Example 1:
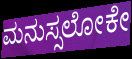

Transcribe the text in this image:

ಮನುಸ್ಸಲೋಕೇ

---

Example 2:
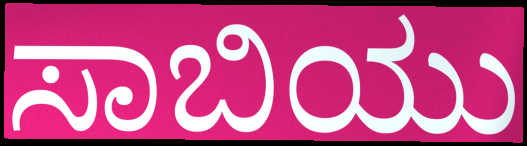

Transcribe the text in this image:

ಸಾಬಿಯು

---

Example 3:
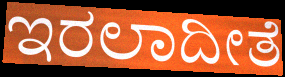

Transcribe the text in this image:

ಇರಲಾದೀತೆ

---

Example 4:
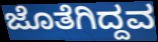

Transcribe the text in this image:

ಜೊತೆಗಿದ್ದವ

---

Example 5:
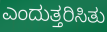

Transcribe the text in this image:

ಎಂದುತ್ತರಿಸಿತು